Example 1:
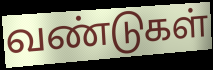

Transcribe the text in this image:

வண்டுகள்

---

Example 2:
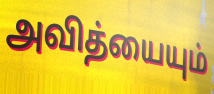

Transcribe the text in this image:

அவித்யையும்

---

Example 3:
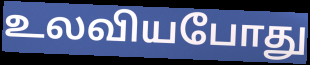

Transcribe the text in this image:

உலவியபோது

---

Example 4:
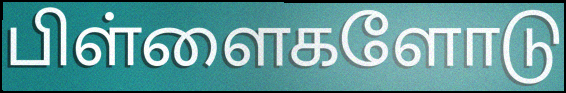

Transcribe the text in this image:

பிள்ளைகளோடு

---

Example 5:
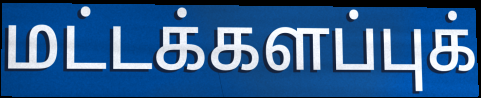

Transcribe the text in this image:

மட்டக்களப்புக்